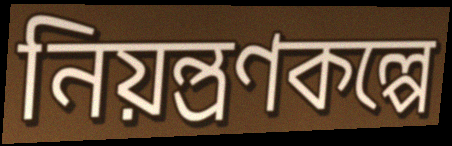
নিয়ন্ত্রণকল্পে